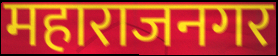
महाराजनगर